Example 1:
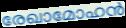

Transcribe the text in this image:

രേഖാമോഹൻ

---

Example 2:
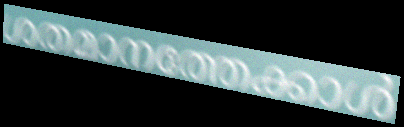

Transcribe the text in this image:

ശതമാനത്തേക്കാൾ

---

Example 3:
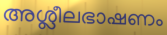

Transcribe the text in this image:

അശ്ലീലഭാഷണം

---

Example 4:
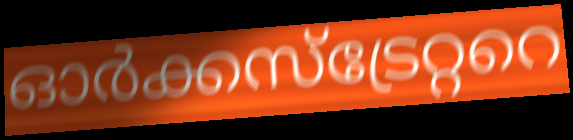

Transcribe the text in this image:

ഓർക്കസ്ട്രേറ്ററെ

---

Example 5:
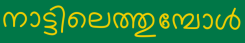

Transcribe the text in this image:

നാട്ടിലെത്തുമ്പോൾ